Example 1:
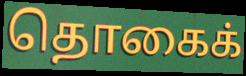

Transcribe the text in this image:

தொகைக்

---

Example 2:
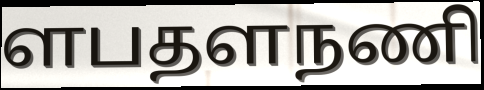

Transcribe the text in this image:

ளபதளநணி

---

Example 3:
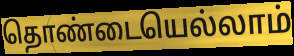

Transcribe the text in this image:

தொண்டையெல்லாம்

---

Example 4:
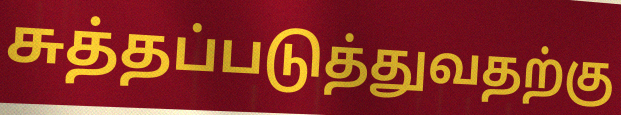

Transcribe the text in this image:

சுத்தப்படுத்துவதற்கு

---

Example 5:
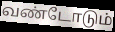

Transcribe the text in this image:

வண்டோடும்